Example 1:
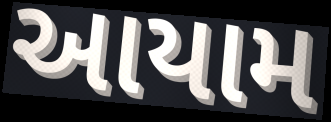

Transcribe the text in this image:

આયામ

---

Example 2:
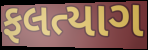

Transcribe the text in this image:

ફલત્યાગ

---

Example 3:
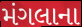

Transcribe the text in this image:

મંગલાના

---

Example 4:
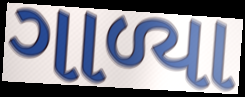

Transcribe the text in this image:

ગાળ્યા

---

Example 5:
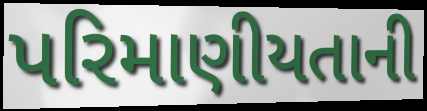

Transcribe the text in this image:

પરિમાણીયતાની